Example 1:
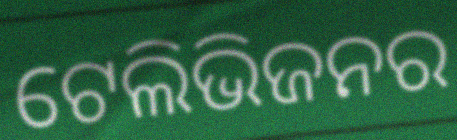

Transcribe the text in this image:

ଟେଲିଭିଜନର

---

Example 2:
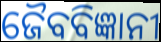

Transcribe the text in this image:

ଜୈବବିଜ୍ଞାନୀ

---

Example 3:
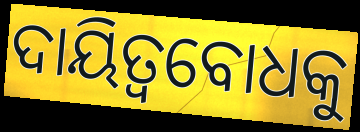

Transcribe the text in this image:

ଦାୟିତ୍ୱବୋଧକୁ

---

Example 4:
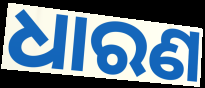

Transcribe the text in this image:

ଧାରଣ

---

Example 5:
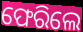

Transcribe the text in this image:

ଫେରିଲେ